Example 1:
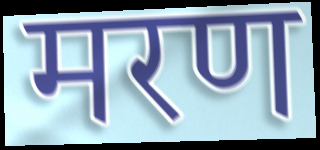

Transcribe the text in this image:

मरण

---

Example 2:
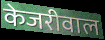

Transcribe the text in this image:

केजरीवाल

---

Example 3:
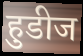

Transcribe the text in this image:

हुडीज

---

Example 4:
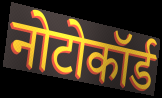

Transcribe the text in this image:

नोटोकॉर्ड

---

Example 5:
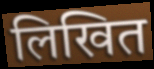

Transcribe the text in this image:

लिखित